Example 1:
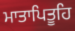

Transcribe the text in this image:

ਮਾਤਾਪਿਤੂਹਿ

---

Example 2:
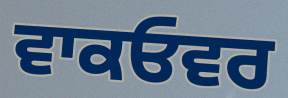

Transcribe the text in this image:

ਵਾਕਓਵਰ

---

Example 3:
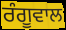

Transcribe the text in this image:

ਰੰਗੂਵਾਲ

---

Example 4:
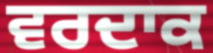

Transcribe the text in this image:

ਵਰਦਾਕ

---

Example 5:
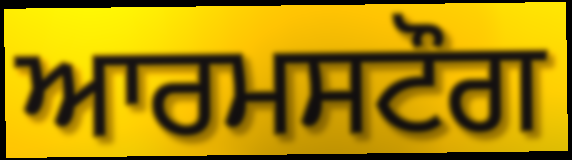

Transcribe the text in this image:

ਆਰਮਸਟੌਗ